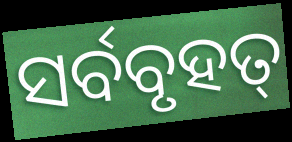
ସର୍ବବୃହତ୍